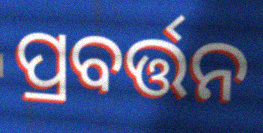
ପ୍ରବର୍ତ୍ତନ